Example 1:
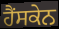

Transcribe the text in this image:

ਹੈਂਸਕੇਨ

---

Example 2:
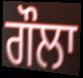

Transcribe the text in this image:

ਗੌਲਾ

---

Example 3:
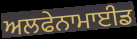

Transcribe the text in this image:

ਅਲਫੇਨਾਮਾਈਡ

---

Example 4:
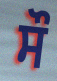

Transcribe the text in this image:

ਸੌ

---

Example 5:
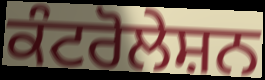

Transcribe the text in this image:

ਕੰਟਰੋਲੇਸ਼ਨ